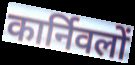
कार्निवलों